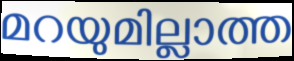
മറയുമില്ലാത്ത